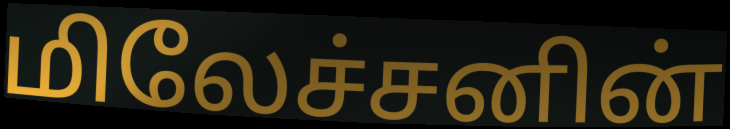
மிலேச்சனின்